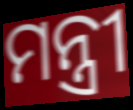
ମନ୍ତ୍ରୀ